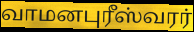
வாமனபுரீஸ்வரர்